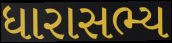
ધારાસભ્ય